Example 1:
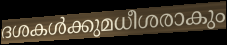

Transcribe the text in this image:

ദശകൾക്കുമധീശരാകും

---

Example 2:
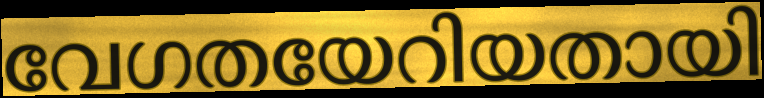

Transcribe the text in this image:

വേഗതയേറിയതായി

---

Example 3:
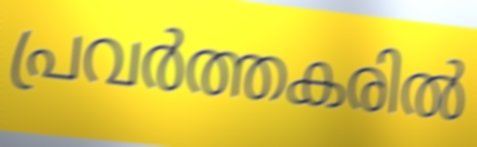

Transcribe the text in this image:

പ്രവർത്തകരിൽ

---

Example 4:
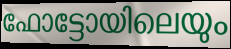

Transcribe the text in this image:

ഫോട്ടോയിലെയും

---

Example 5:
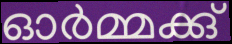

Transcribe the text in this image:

ഓർമ്മക്കു്